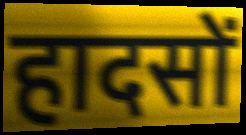
हादसों